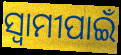
ସ୍ୱାମୀପାଇଁ